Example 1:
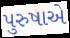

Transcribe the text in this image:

પુરુષાએ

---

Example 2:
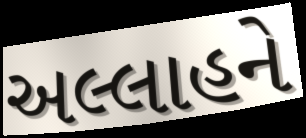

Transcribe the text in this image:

અલ્લાહને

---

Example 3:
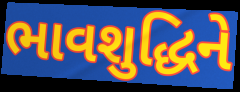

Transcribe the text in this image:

ભાવશુદ્ધિને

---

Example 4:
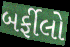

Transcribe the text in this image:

બર્ફીલો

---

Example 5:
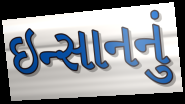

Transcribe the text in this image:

ઇન્સાનનું